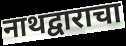
नाथद्वाराचा